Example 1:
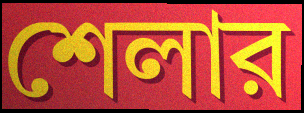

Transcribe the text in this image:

শেলার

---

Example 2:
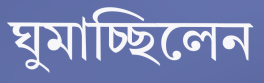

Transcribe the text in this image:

ঘুমাচ্ছিলেন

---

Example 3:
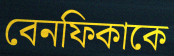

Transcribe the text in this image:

বেনফিকাকে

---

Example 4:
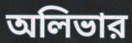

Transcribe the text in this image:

অলিভার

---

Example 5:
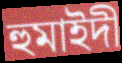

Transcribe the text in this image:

হুমাইদী